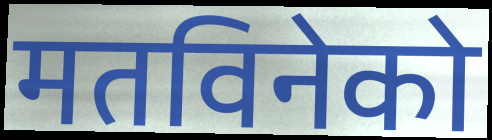
मतविनेको